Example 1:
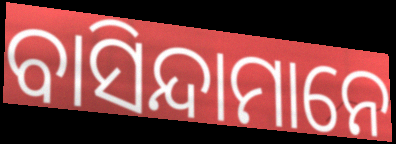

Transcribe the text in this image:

ବାସିନ୍ଦାମାନେ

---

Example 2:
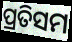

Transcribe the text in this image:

ପ୍ରତିସମ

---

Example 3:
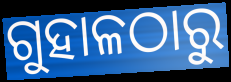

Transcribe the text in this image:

ଗୁହାଳଠାରୁ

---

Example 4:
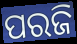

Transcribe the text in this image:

ପରଜି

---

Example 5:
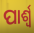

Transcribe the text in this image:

ପାର୍ଶ୍ବ